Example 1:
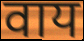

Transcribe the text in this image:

वाय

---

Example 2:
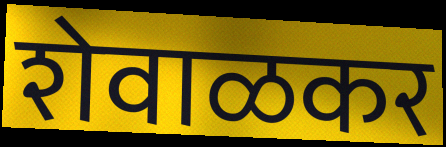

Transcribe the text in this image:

शेवाळकर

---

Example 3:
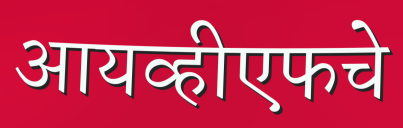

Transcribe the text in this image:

आयव्हीएफचे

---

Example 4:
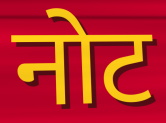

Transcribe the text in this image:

नोट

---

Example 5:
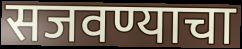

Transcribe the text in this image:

सजवण्याचा